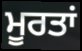
ਮੂਰਤਾਂ